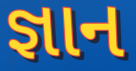
જ્ઞાન